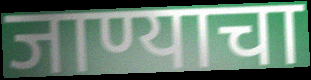
जाण्याचा